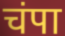
चंपा